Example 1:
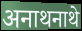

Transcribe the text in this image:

अनाथनाथे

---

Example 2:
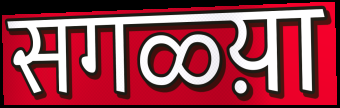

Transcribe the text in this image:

सगळ्य़ा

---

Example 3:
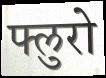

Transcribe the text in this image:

फ्लुरो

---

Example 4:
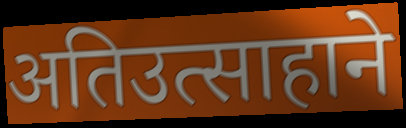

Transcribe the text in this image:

अतिउत्साहाने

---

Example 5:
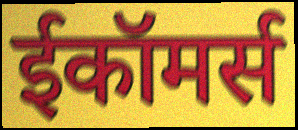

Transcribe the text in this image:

ईकॉमर्स